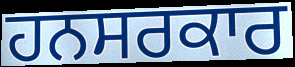
ਹਨਸਰਕਾਰ